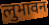
लुभावन